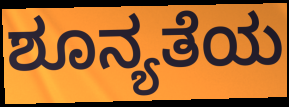
ಶೂನ್ಯತೆಯ